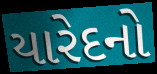
યારેદનો